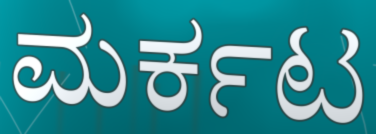
ಮರ್ಕಟ